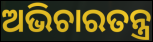
ଅଭିଚାରତନ୍ତ୍ର